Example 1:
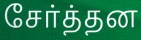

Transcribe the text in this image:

சேர்த்தன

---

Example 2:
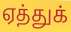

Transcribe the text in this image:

ஏத்துக்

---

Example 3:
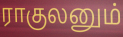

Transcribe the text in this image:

ராகுலனும்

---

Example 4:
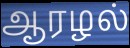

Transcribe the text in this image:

ஆரழல்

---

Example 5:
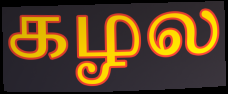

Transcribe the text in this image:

கழல